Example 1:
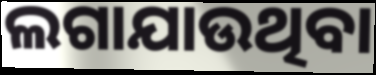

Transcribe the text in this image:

ଲଗାଯାଉଥିବା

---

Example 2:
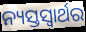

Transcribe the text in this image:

ନ୍ୟସ୍ତସ୍ୱାର୍ଥର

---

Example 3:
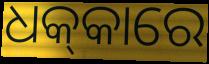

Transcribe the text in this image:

ଧକ୍‌କାରେ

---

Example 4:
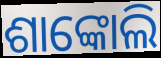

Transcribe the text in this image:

ଶାଙ୍କୋଲି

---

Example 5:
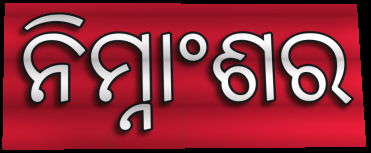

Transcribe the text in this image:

ନିମ୍ନାଂଶର